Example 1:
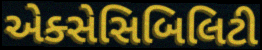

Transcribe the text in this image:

એક્સેસિબિલિટી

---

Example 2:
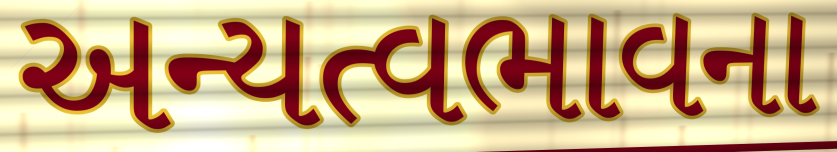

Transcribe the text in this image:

અન્યત્વભાવના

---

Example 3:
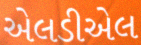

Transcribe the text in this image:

એલડીએલ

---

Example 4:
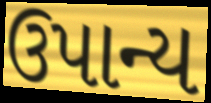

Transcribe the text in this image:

ઉપાન્ય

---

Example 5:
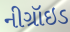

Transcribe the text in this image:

નીગ્રૉઇડ